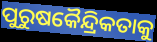
ପୁରୁଷକୈନ୍ଦ୍ରିକତାକୁ